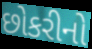
છોકરીનો